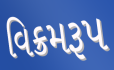
વિક્રમરૂપ